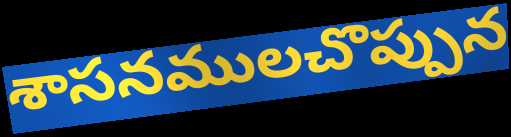
శాసనములచొప్పున